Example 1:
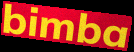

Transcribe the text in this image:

bimba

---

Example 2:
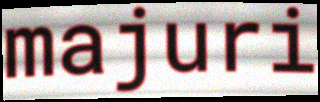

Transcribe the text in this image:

majuri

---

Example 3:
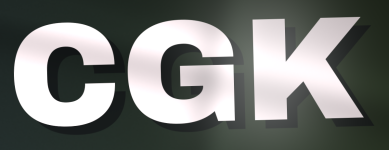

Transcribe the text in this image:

CGK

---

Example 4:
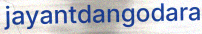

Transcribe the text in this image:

jayantdangodara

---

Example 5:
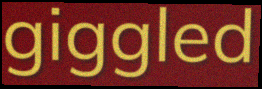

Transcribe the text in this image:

giggled